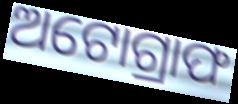
ଅଟୋଗ୍ରାଫ